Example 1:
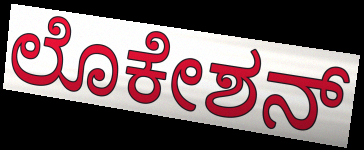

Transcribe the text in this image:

ಲೊಕೇಶನ್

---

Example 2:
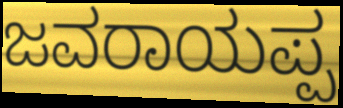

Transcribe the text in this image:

ಜವರಾಯಪ್ಪ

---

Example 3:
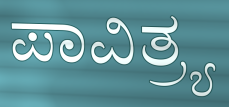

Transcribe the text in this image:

ಪಾವಿತ್ರ್ಯ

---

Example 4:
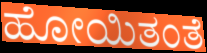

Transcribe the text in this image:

ಹೋಯಿತಂತೆ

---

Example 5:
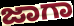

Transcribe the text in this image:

ಜಾಗಾ